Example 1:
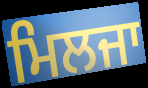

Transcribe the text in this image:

ਮਿਲਜਾ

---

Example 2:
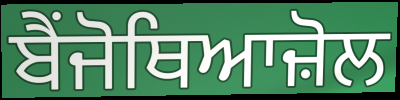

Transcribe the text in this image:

ਬੈਂਜੋਥਿਆਜ਼ੋਲ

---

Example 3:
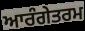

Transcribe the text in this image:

ਆਰੰਗੇਤਰਮ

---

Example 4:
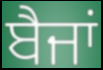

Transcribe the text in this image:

ਬੈਜਾਂ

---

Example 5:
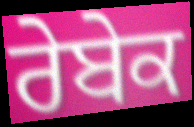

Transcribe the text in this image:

ਰੇਬੇਕ